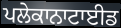
ਪਲੇਕਾਨਾਟਾਈਡ